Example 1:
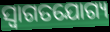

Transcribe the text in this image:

ସ୍ବାଗତଯୋଗ୍ୟ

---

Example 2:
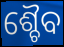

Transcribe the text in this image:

ଶ୍ଚୈବ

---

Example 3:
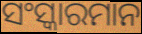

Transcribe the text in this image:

ସଂସ୍କାରମାନ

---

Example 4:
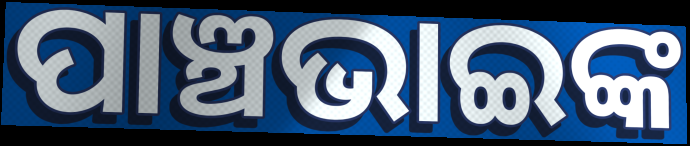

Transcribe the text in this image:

ପାଞ୍ଚଭାଇଙ୍କ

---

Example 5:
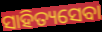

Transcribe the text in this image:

ସାହିତ୍ୟସେବା